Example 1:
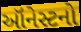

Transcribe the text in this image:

ઑનેસ્ટનો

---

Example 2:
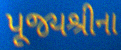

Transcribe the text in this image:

પૂજ્યશ્રીના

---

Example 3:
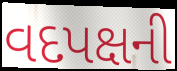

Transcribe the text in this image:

વદપક્ષની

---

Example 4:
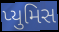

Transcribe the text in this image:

પ્યુમિસ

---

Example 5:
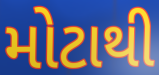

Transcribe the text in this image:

મોટાથી